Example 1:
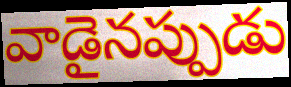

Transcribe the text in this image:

వాడైనప్పుడు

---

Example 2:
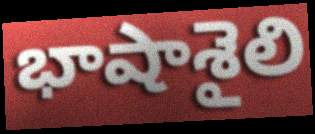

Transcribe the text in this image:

భాషాశైలి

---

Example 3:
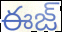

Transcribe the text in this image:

ఈజ్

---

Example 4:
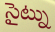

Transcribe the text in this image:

సైట్ను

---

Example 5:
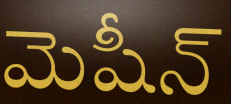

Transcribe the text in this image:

మెషీన్